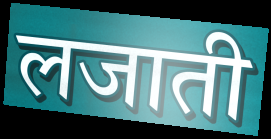
लजाती